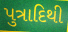
પુત્રાદિથી